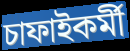
চাফাইকৰ্মী